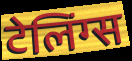
टेलिंग्स